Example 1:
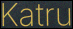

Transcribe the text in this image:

Katru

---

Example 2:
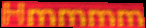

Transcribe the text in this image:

Hmmmm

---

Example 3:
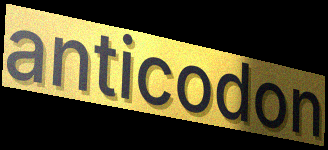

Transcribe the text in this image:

anticodon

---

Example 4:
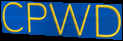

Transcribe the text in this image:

CPWD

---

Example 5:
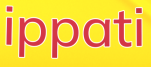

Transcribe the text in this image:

ippati